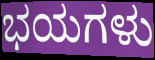
ಭಯಗಳು